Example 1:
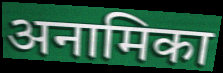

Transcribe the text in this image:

अनामिका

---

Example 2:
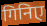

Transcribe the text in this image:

गिनिए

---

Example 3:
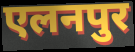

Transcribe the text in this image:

एलनपुर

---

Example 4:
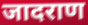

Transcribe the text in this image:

जादराण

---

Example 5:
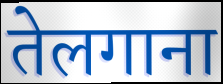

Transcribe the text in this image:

तेलगाना